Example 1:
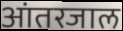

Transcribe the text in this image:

आंतरजाल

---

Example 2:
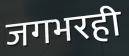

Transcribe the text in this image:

जगभरही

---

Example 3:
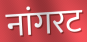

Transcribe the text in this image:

नांगरट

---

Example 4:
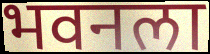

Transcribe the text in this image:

भवनला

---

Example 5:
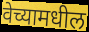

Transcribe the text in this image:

वेच्यामधील